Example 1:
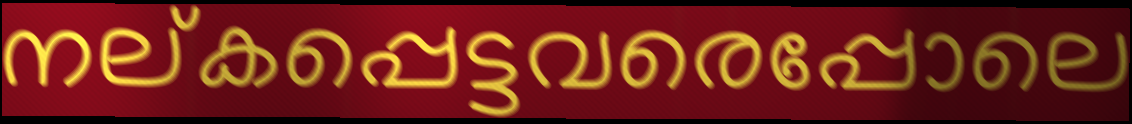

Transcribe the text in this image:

നല്കപ്പെട്ടവരെപ്പോലെ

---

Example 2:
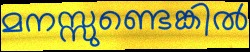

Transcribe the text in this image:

മനസ്സുണ്ടെങ്കിൽ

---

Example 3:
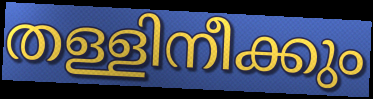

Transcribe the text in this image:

തള്ളിനീക്കും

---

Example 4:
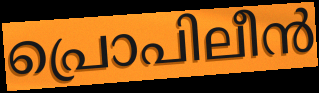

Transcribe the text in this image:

പ്രൊപിലീൻ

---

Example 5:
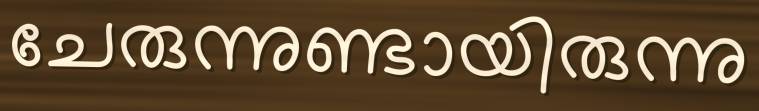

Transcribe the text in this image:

ചേരുന്നുണ്ടായിരുന്നു